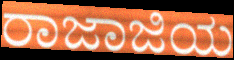
ರಾಜಾಜಿಯ